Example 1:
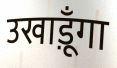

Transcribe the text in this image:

उखाड़ूँगा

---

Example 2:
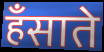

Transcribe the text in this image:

हँसाते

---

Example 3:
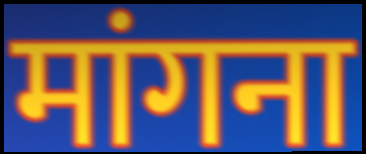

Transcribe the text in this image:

मांगना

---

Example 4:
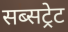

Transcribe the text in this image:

सब्सट्रेट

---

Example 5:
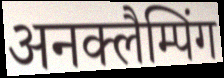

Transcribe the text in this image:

अनक्लैम्पिंग